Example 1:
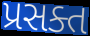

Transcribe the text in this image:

પ્રસક્ત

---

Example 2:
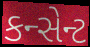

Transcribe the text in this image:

કન્સેન્ટ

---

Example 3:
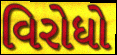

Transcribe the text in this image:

વિરોધો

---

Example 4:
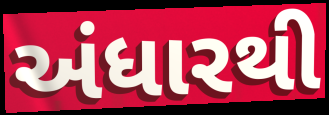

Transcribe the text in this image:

અંધારથી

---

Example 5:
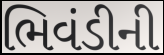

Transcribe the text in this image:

ભિવંડીની